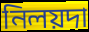
নিলয়দা